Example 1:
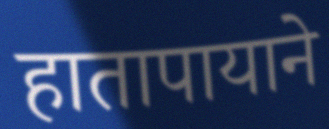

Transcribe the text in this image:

हातापायाने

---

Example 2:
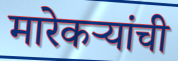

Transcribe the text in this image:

मारेकऱ्यांची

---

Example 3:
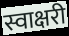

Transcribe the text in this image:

स्वाक्षरी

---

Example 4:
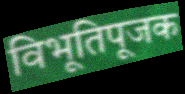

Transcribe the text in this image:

विभूतिपूजक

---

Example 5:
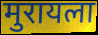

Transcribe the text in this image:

मुरायला